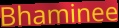
Bhaminee